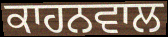
ਕਾਹਨਵਾਲ